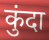
कुंदा